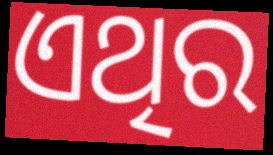
ଏଥିର